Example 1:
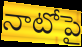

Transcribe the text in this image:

నాటోపై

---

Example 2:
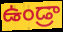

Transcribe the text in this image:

ఉండ్రా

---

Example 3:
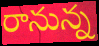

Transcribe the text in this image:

రానున్న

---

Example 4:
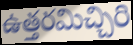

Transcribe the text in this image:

ఉత్తరమిచ్చిరి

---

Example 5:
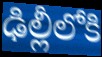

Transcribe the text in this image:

ఢిల్లీలోకి